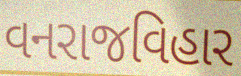
વનરાજવિહાર